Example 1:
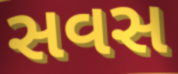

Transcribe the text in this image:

સવસ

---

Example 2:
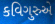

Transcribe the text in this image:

કવિગુરુએ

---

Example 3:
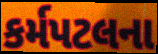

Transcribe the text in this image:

કર્મપટલના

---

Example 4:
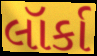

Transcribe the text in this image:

લૉર્કા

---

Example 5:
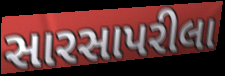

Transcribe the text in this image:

સારસાપરીલા